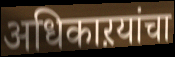
अधिकाऱयांचा